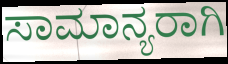
ಸಾಮಾನ್ಯರಾಗಿ